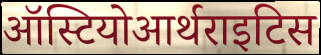
ऑस्टियोआर्थराइटिस